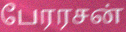
பேரரசன்